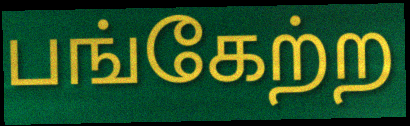
பங்கேற்ற